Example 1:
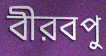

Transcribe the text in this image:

বীরবপু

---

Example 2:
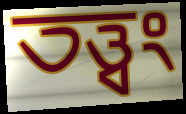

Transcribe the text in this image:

তত্ত্বং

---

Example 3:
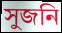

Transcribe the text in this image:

সুজনি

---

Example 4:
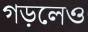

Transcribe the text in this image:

গড়লেও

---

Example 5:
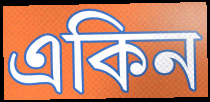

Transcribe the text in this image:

একিন